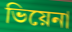
ভিয়েনা